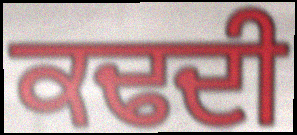
ਕਢਦੀ